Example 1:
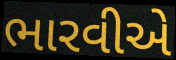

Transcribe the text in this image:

ભારવીએ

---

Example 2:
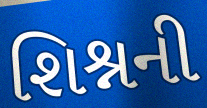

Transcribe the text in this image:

શિશ્નની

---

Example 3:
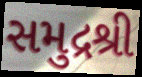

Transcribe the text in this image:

સમુદ્રશ્રી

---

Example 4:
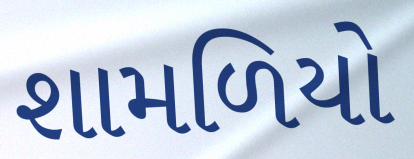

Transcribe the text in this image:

શામળિયો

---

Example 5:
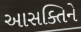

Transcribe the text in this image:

આસક્તિને